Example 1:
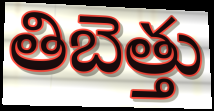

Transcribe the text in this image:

తిబెత్తు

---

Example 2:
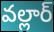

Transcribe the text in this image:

వల్లార్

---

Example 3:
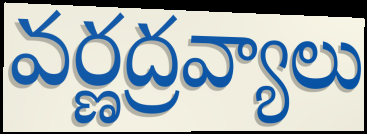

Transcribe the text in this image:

వర్ణద్రవ్యాలు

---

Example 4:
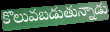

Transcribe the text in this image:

కొలువబడుతున్నాడు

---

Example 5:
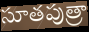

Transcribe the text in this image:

సూతపుత్రా